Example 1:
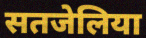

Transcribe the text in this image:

सतजेलिया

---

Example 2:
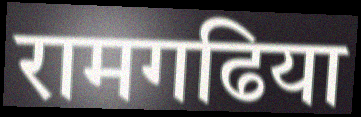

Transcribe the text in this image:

रामगढिया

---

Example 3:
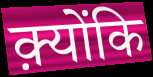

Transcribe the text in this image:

क़्योंकि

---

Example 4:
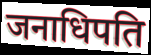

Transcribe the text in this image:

जनाधिपति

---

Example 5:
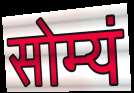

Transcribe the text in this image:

सोम्यं